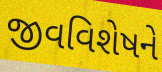
જીવવિશેષને